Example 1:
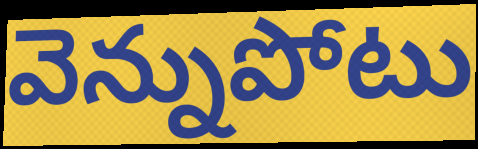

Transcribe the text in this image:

వెన్నుపోటు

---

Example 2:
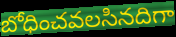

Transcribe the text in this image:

బోధించవలసినదిగా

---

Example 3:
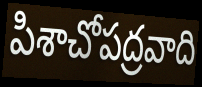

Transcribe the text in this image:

పిశాచోపద్రవాది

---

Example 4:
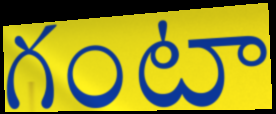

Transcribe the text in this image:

గంటా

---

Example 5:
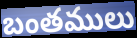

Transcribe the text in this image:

బంతములు